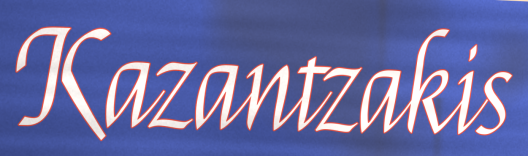
Kazantzakis